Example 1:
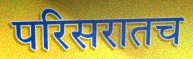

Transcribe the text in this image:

परिसरातच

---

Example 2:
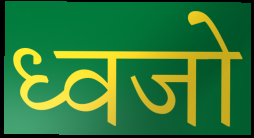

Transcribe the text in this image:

ध्वजो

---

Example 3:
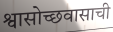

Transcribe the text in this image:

श्वासोच्छवासाची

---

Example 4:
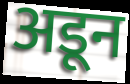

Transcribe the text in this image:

अडून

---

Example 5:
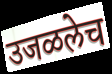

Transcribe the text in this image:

उजळलेच